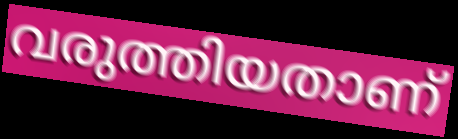
വരുത്തിയതാണ്